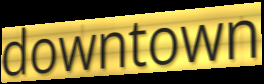
downtown